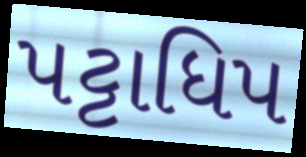
પટ્ટાધિપ